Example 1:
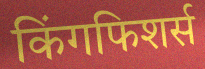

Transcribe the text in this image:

किंगफिशर्स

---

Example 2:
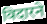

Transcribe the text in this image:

विदारने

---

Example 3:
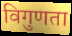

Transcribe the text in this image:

विगुणता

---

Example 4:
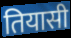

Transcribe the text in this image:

तियासी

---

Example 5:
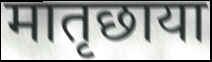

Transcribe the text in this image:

मातृछाया